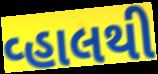
વ્હાલથી